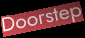
Doorstep